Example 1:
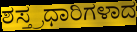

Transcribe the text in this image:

ಶಸ್ತ್ರಧಾರಿಗಳಾದ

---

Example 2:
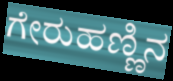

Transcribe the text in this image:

ಗೇರುಹಣ್ಣಿನ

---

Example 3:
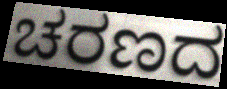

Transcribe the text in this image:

ಚರಣದ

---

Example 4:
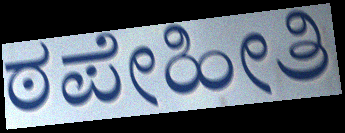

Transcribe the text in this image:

ಠಪೇಹೀತಿ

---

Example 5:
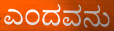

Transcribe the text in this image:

ಎಂದವನು